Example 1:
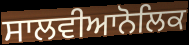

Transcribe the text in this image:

ਸਾਲਵੀਆਨੋਲਿਕ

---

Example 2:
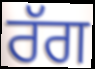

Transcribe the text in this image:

ਰੱਗ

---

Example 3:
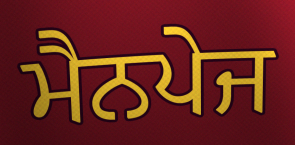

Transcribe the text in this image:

ਮੈਨਪੇਜ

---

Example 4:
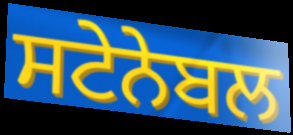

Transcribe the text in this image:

ਸਟੇਨੇਬਲ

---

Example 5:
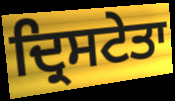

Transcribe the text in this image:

ਦ੍ਰਿਸਟੇਤਾ